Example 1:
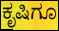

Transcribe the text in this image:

ಕೃಷಿಗೂ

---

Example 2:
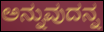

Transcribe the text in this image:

ಅನ್ನುವುದನ್ನ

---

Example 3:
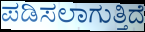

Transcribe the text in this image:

ಪಡಿಸಲಾಗುತ್ತಿದೆ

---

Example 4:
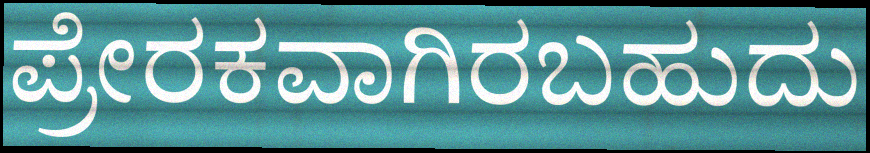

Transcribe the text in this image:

ಪ್ರೇರಕವಾಗಿರಬಹುದು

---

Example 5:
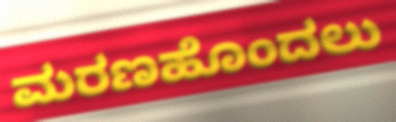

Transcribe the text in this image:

ಮರಣಹೊಂದಲು